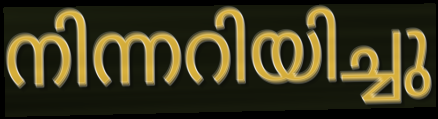
നിന്നറിയിച്ചു